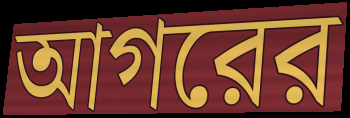
আগরের